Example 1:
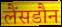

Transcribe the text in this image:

लैंसडौन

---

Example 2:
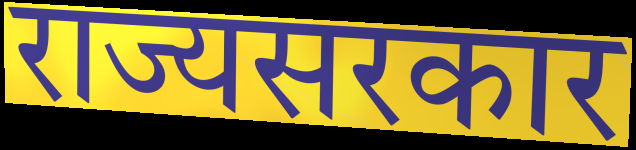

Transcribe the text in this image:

राज्यसरकार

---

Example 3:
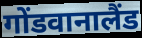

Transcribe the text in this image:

गोंडवानालैंड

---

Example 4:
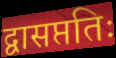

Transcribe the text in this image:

द्वासप्ततिः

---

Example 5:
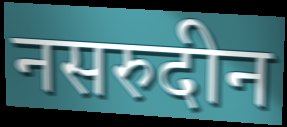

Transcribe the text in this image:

नसरुदीन